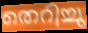
തെറിച്ചു